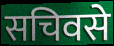
सचिवसे